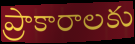
ప్రాకారాలకు